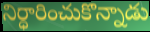
నిర్ధారించుకొన్నాడు